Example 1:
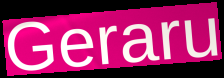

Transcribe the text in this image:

Geraru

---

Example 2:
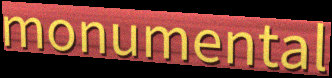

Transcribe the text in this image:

monumental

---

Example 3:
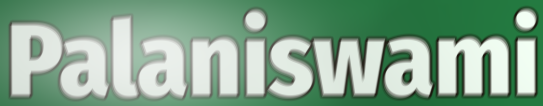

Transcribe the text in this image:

Palaniswami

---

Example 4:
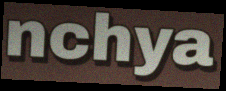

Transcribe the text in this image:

nchya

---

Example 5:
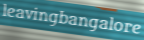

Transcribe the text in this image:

leavingbangalore